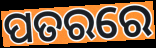
ପତରରେ